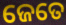
ଜେତେ